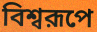
বিশ্বরূপে